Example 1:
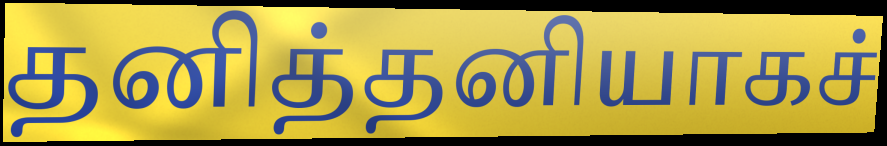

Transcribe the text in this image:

தனித்தனியாகச்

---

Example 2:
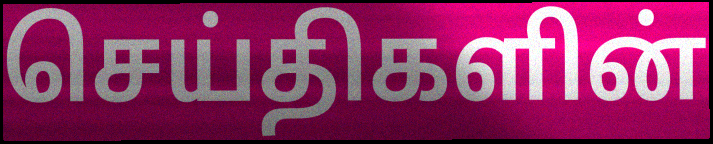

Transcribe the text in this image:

செய்திகளின்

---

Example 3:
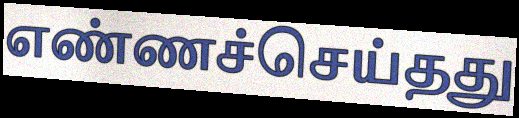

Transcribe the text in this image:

எண்ணச்செய்தது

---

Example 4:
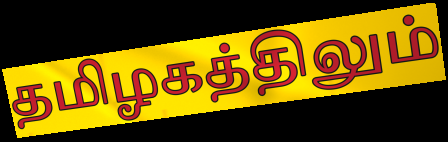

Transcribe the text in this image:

தமிழகத்திலும்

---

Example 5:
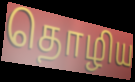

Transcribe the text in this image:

தொழிய